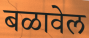
बळावेल